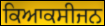
ਕਿਆਕਸੀਜਨ